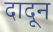
दादून